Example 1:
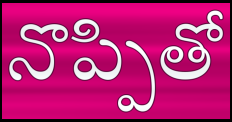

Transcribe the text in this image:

నొప్పితో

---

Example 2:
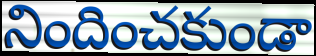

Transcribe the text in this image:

నిందించకుండా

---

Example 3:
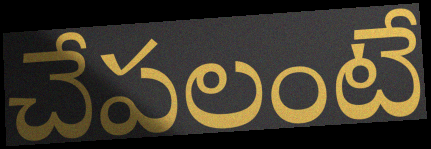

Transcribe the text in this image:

చేపలంటే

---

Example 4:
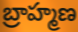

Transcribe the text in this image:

బ్రాహ్మణ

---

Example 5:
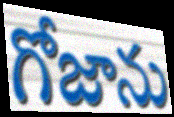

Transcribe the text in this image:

గోజాను